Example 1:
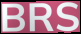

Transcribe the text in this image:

BRS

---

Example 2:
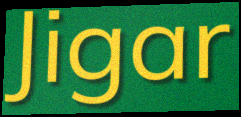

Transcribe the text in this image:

Jigar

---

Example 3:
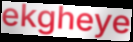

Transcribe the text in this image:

ekgheye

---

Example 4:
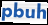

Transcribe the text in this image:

pbuh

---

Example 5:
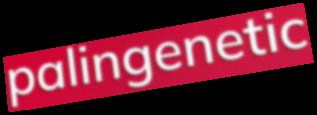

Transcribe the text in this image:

palingenetic